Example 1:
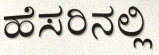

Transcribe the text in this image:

ಹೆಸರಿನಲ್ಲಿ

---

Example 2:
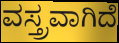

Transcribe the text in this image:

ವಸ್ತ್ರವಾಗಿದೆ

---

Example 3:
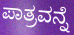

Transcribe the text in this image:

ಪಾತ್ರವನ್ನೆ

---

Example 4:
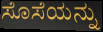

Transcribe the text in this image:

ಸೊಸೆಯನ್ನು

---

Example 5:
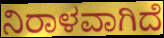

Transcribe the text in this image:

ನಿರಾಳವಾಗಿದೆ